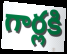
గార్లకి